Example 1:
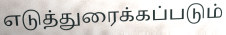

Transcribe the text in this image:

எடுத்துரைக்கப்படும்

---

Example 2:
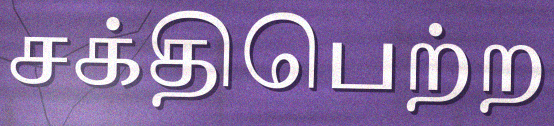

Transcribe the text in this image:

சக்திபெற்ற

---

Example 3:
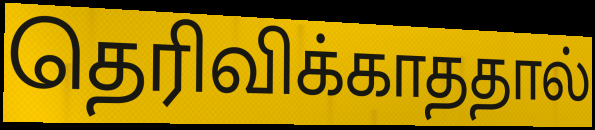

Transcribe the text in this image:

தெரிவிக்காததால்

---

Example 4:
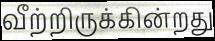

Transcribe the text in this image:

வீற்றிருக்கின்றது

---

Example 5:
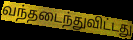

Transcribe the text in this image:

வந்தடைந்துவிட்டது